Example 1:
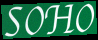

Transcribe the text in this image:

SOHO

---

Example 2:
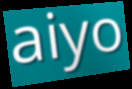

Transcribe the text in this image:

aiyo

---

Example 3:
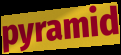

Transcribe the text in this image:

pyramid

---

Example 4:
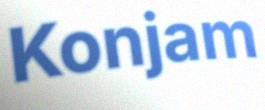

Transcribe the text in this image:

Konjam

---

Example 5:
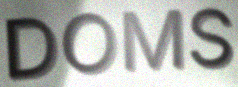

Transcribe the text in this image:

DOMS